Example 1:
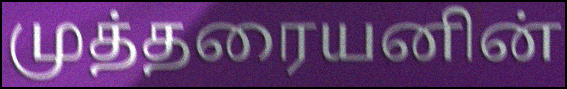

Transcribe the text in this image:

முத்தரையனின்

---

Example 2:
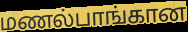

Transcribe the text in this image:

மணல்பாங்கான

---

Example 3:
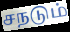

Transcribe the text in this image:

சநடும்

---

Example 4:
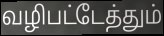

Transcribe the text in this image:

வழிபட்டேத்தும்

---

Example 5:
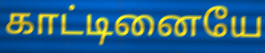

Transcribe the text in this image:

காட்டினையே